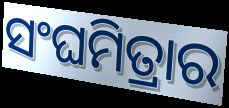
ସଂଘମିତ୍ରାର